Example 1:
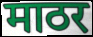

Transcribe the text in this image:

माठर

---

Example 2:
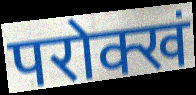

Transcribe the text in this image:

परोक्खं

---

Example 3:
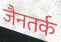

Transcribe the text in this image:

जैनतर्क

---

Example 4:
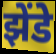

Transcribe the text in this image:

झेंडे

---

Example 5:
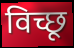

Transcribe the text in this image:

विच्छू